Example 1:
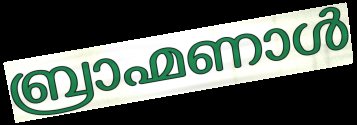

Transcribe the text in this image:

ബ്രാഹ്മണാൾ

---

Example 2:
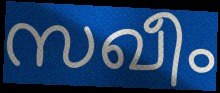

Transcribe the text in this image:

സഖീം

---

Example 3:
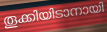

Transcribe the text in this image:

തൂക്കിയിടാനായി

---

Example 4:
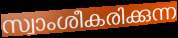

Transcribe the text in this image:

സ്വാംശീകരിക്കുന്ന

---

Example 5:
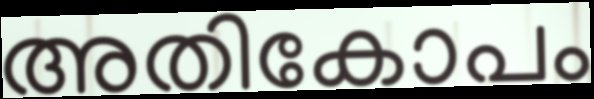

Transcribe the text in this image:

അതികോപം